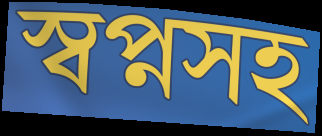
স্বপ্নসহ